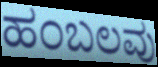
ಹಂಬಲವು